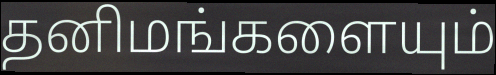
தனிமங்களையும்